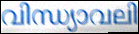
വിന്ധ്യാവലി